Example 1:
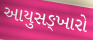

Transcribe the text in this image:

આયુસઙ્ખારો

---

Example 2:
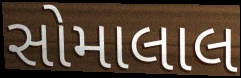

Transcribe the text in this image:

સોમાલાલ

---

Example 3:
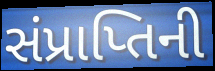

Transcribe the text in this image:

સંપ્રાપ્તિની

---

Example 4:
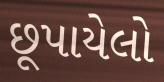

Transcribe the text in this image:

છૂપાયેલો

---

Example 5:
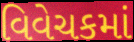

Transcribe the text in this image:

વિવેચકમાં